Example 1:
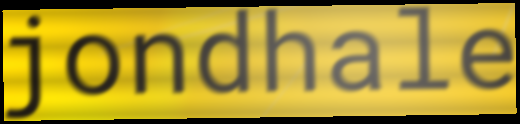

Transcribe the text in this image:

jondhale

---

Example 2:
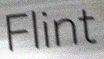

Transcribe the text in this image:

Flint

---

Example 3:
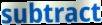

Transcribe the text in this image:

subtract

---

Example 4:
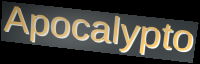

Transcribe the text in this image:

Apocalypto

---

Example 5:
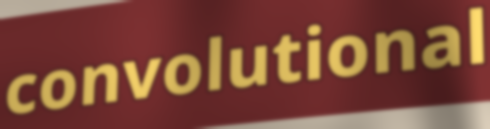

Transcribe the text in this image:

convolutional